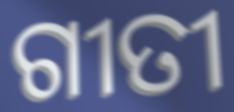
ଗୀତୀ